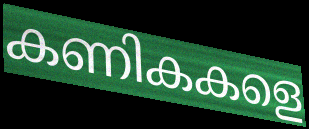
കണികകളെ